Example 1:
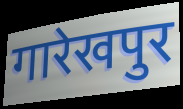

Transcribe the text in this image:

गारेखपुर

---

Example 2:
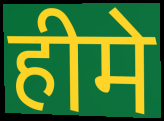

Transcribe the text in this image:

हीमे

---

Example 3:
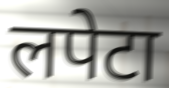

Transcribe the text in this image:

लपेटा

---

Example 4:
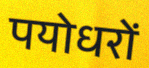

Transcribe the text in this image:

पयोधरों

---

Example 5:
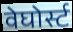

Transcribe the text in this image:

वेघोर्स्ट